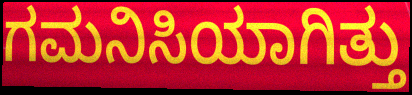
ಗಮನಿಸಿಯಾಗಿತ್ತು